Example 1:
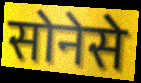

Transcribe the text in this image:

सोनेसे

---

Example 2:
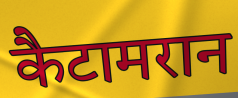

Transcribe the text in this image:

कैटामरान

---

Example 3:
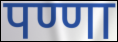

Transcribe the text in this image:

पण्णा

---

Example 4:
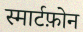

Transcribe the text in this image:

स्‍मार्टफ़ोन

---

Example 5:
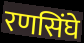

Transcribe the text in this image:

रणसिंघे